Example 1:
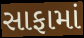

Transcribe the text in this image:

સાફામાં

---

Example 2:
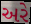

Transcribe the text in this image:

અરે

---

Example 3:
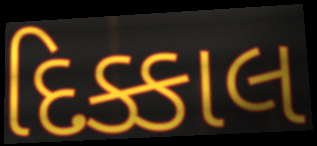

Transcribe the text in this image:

દિક્કાલ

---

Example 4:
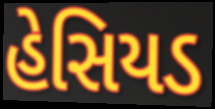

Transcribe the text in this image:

હેસિયડ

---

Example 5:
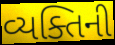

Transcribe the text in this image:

વ્યક્તિની